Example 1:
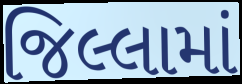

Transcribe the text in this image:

જિલ્લામાં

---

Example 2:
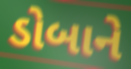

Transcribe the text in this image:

ડોબાને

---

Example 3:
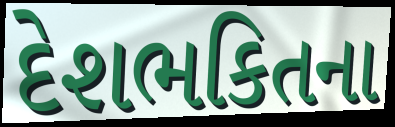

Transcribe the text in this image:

દેશભકિતના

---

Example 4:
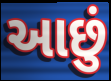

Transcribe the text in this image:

આછું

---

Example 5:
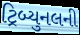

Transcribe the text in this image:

ટ્રિબ્યુનલની